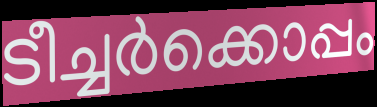
ടീച്ചർക്കൊപ്പം